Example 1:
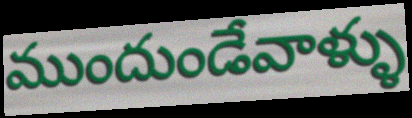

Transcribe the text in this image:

ముందుండేవాళ్ళు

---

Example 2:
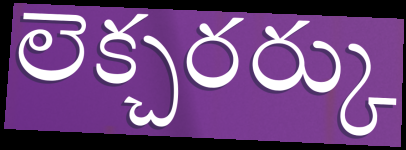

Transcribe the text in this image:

లెక్చరర్కు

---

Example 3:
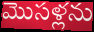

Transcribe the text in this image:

మొసళ్లను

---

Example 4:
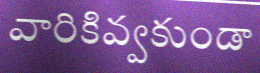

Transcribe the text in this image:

వారికివ్వకుండా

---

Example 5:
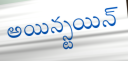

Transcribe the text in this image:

అయిన్స్టయిన్